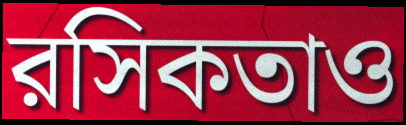
রসিকতাও